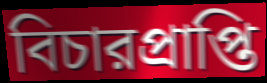
বিচারপ্রাপ্তি